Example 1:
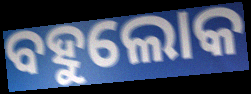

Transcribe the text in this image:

ବହୁଲୋକ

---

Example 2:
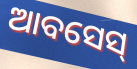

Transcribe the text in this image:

ଆବସେସ୍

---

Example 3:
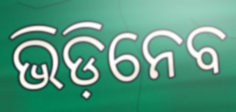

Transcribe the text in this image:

ଭିଡ଼ିନେବ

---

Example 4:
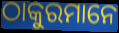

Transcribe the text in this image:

ଠାକୁରମାନେ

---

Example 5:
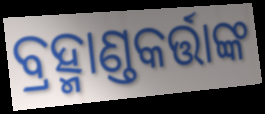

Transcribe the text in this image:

ବ୍ରହ୍ମାଣ୍ଡକର୍ତ୍ତାଙ୍କ